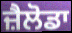
ਜ਼ੈਲੋਡਾ